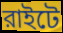
রাইটে